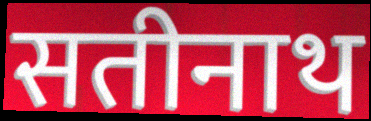
सतीनाथ